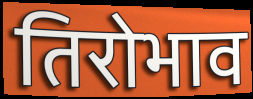
तिरोभाव